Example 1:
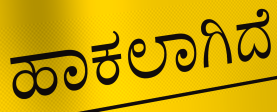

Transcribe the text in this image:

ಹಾಕಲಾಗಿದೆ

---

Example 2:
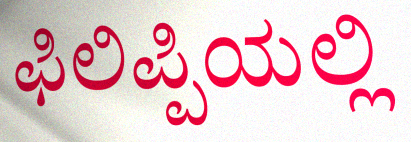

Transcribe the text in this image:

ಫಿಲಿಪ್ಪಿಯಲ್ಲಿ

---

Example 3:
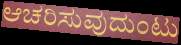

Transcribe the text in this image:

ಆಚರಿಸುವುದುಂಟು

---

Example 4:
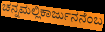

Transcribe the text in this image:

ಚನ್ನಮಲ್ಲಿಕಾರ್ಜುನನೆಂಬ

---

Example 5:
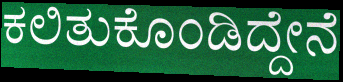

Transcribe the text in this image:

ಕಲಿತುಕೊಂಡಿದ್ದೇನೆ